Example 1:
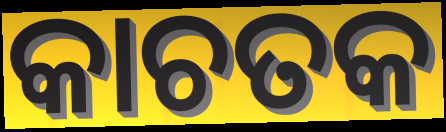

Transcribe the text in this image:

କାଚତକ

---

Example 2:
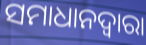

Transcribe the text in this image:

ସମାଧାନଦ୍ୱାରା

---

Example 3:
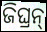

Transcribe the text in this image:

ଜିଘ୍ରନ୍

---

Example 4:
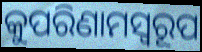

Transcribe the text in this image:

କୁପରିଣାମସ୍ୱରୂପ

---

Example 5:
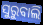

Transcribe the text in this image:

ସୁରୁବାଲି